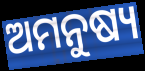
ଅମନୁଷ୍ୟ